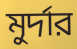
মুর্দার